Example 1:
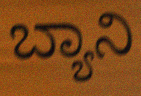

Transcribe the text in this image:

ಬ್ಯಾನಿ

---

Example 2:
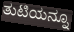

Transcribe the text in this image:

ತುಟಿಯನ್ನೂ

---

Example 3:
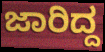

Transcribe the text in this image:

ಜಾರಿದ್ದ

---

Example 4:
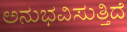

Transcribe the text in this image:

ಅನುಭವಿಸುತ್ತಿದೆ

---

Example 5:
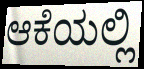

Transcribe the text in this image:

ಆಕೆಯಲ್ಲಿ